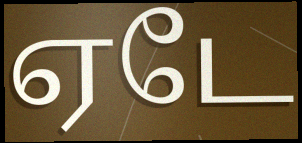
ஏடே